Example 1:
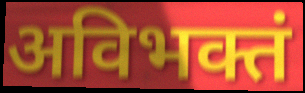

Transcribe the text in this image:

अविभक्तं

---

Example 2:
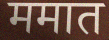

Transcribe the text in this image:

ममात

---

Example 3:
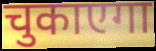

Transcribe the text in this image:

चुकाएगा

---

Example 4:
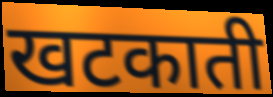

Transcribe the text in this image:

खटकाती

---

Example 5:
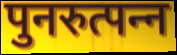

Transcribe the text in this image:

पुनरुत्पन्न